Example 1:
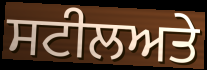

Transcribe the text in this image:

ਸਟੀਲਅਤੇ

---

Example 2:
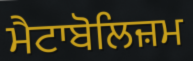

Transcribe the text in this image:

ਮੈਟਾਬੋਲਿਜ਼ਮ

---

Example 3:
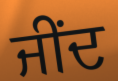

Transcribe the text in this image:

ਜੀਂਦ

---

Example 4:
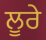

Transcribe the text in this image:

ਲੂਰੇ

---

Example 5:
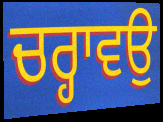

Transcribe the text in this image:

ਚਰ੍ਹਾਵਉ